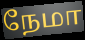
நேமா